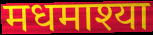
मधमाश्या